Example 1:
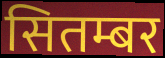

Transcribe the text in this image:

सितम्‍बर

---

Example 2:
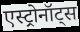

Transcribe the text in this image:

एस्ट्रोनॉट्स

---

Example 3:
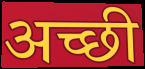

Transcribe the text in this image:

अच्छी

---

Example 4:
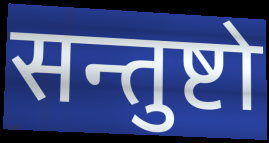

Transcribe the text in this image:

सन्तुष्टो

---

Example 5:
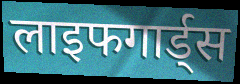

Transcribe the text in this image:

लाइफगार्ड्स